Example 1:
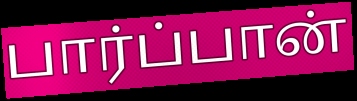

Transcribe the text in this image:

பார்ப்பான்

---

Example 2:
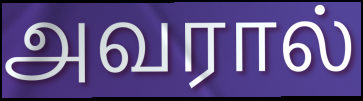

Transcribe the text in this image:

அவரால்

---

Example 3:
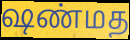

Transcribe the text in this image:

ஷண்மத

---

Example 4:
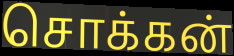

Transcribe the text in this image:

சொக்கன்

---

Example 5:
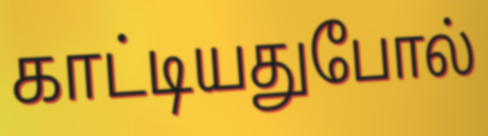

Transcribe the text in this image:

காட்டியதுபோல்